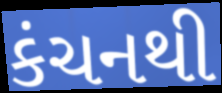
કંચનથી